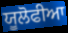
ਯੂਲੋਫੀਆ